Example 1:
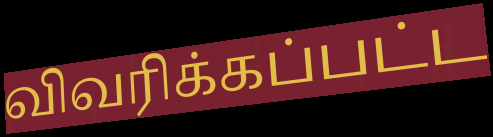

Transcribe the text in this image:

விவரிக்கப்பட்ட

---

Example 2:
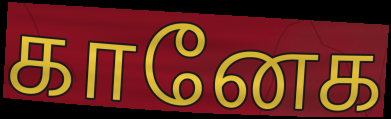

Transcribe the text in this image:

கானேக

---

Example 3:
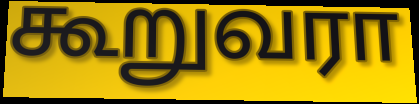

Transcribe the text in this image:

கூறுவரா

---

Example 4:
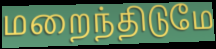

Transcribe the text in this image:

மறைந்திடுமே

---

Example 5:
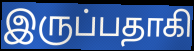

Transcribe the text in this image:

இருப்பதாகி